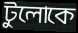
টুলোকে